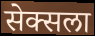
सेक्सला